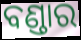
ବଣ୍ଡାର